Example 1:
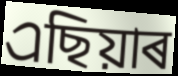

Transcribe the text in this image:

এছিয়াৰ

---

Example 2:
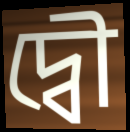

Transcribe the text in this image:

দ্বৌ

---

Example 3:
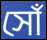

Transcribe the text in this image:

সোঁ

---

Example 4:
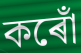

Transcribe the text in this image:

কৰোঁ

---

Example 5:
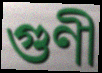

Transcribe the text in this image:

গুণী